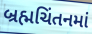
બ્રહ્મચિંતનમાં